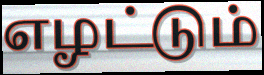
எழட்டும்